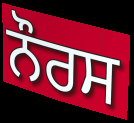
ਨੌਰਸ